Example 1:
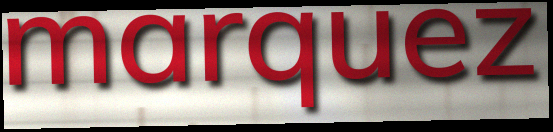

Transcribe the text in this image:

marquez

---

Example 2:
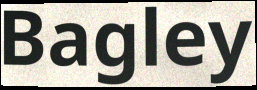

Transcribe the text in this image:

Bagley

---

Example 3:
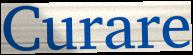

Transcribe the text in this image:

Curare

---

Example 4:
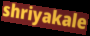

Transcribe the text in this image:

shriyakale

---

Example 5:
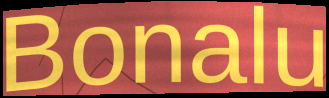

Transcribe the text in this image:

Bonalu